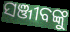
ସଞ୍ଜୀବଙ୍କୁ